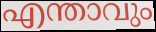
എന്താവും